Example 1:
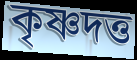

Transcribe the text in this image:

কৃষ্ণদত্ত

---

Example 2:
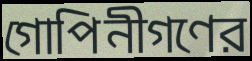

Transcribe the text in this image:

গোপিনীগণের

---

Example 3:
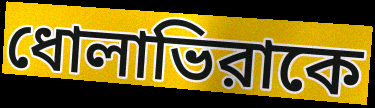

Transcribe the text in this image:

ধোলাভিরাকে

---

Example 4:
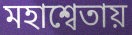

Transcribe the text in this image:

মহাশ্বেতায়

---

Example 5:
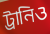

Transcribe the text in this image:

ট্রানিও